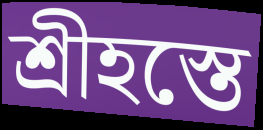
শ্রীহস্তে